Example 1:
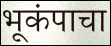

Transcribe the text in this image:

भूकंपाचा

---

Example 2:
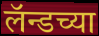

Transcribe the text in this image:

लॅन्डच्या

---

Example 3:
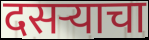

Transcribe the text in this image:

दसऱ्याचा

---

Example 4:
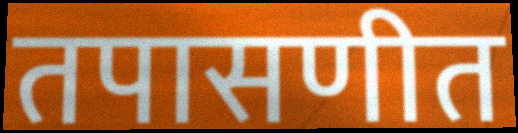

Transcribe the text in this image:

तपासणीत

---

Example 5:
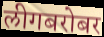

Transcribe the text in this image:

लीगबरोबर